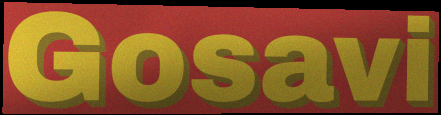
Gosavi